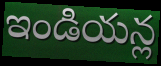
ఇండియన్ల